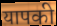
यापकी